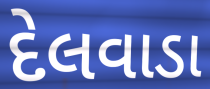
દેલવાડા